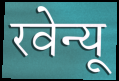
रवेन्यू